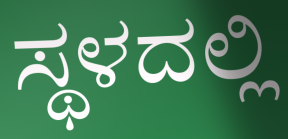
ಸ್ಥಳದಲ್ಲಿ